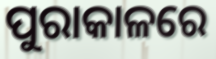
ପୁରାକାଳରେ